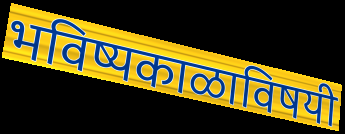
भविष्यकाळाविषयी